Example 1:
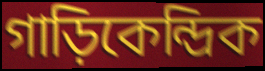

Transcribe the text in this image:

গাড়িকেন্দ্রিক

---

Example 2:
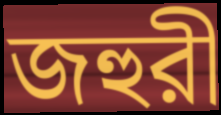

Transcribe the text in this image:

জহুরী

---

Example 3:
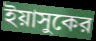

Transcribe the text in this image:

ইয়াসুকের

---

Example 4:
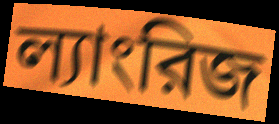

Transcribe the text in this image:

ল্যাংরিজ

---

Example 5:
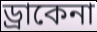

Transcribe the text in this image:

ড্রাকেনা